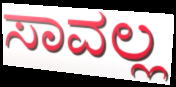
ಸಾವಲ್ಲ